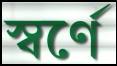
স্বর্ণে